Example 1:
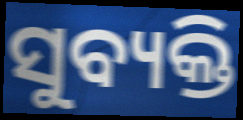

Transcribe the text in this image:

ସୁବ୍ୟକ୍ତି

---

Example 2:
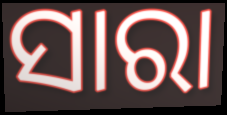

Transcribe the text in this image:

ସାରା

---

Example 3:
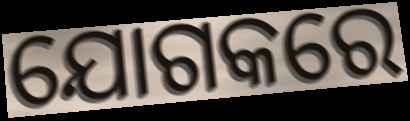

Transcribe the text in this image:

ଯୋଗକରେ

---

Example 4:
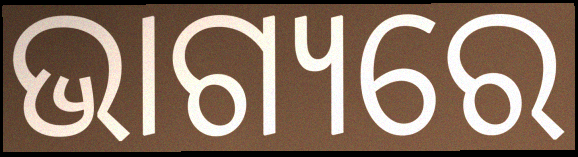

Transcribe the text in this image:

ଭାଗ୍ୟରେ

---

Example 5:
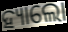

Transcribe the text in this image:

ହ୍ୟାଲୋ